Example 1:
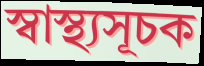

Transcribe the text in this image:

স্বাস্থ্যসূচক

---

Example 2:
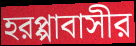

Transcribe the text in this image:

হরপ্পাবাসীর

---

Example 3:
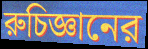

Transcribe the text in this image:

রুচিজ্ঞানের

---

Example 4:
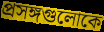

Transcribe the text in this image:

প্রসঙ্গগুলোকে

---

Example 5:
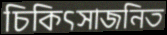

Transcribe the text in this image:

চিকিৎসাজনিত